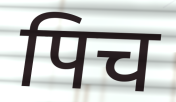
पिच